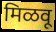
मिळवू